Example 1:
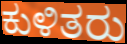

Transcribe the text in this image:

ಕುಳಿತರು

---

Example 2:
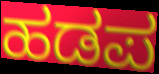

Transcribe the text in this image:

ಹಡಪ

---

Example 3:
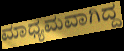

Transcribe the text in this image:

ಮಾಧ್ಯಮವಾಗಿದ್ದ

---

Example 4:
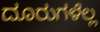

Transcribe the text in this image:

ದೂರುಗಳೆಲ್ಲ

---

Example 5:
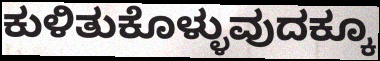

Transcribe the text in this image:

ಕುಳಿತುಕೊಳ್ಳುವುದಕ್ಕೂ